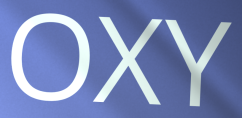
OXY